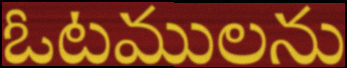
ఓటములను